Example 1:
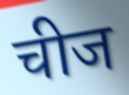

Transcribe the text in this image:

चीज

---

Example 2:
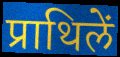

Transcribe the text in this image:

प्राथिलें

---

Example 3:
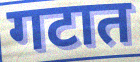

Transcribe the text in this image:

गटात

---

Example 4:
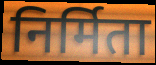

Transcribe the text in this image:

निर्मिता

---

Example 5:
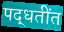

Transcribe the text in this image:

पद्धतींत